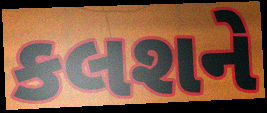
કલશને